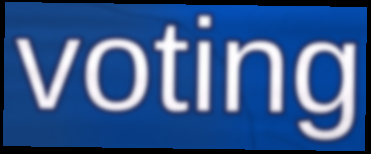
voting